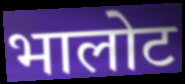
भालोट